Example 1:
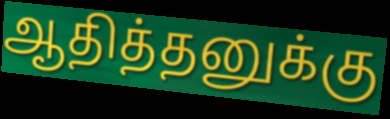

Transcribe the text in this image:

ஆதித்தனுக்கு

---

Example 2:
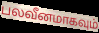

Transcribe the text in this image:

பலவீனமாகவும்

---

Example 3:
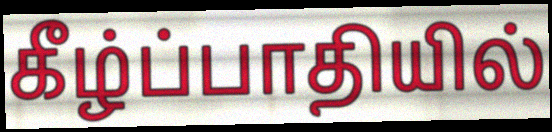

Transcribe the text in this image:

கீழ்ப்பாதியில்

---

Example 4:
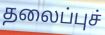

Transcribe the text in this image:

தலைப்புச்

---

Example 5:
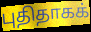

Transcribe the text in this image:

புதிதாகக்